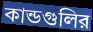
কান্ডগুলির